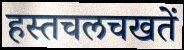
हस्तचलचखतें